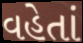
વહેતાં